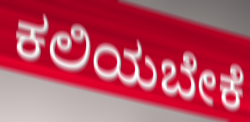
ಕಲಿಯಬೇಕೆ